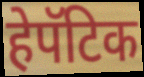
हेपॅटिक